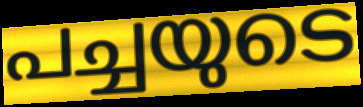
പച്ചയുടെ